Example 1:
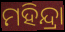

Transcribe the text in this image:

ମହିନ୍ଦ୍ରା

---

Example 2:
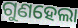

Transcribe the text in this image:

ଗୁଣହେଲା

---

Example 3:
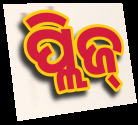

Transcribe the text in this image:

ପ୍ଲିଜ୍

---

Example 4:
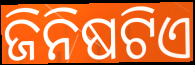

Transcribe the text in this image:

ଜିନିଷଟିଏ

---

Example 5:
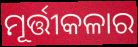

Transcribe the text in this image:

ମୂର୍ତ୍ତୀକଳାର